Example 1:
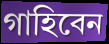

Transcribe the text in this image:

গাহিবেন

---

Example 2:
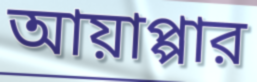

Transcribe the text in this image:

আয়াপ্পার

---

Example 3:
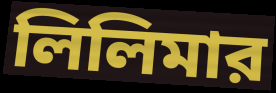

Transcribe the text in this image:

লিলিমার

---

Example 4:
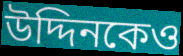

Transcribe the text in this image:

উদ্দিনকেও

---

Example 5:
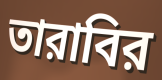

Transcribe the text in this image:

তারাবির